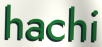
hachi